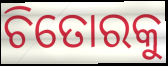
ଚିତୋରକୁ